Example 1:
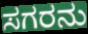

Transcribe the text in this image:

ಸಗರನು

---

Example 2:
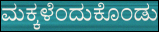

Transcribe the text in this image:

ಮಕ್ಕಳೆಂದುಕೊಂಡು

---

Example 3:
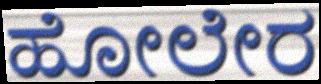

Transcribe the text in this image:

ಹೋಲೇರ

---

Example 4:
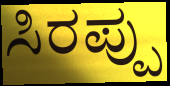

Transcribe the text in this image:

ಸಿರಪ್ಪು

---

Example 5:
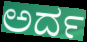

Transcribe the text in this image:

ಅರ್ದ